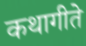
कथागीते